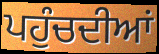
ਪਹੁੰਚਦੀਆਂ